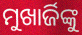
ମୁଖାର୍ଜିଙ୍କୁ